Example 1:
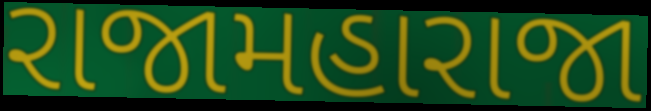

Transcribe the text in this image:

રાજામહારાજા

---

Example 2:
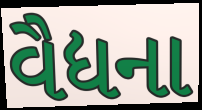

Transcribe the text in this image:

વૈદ્યના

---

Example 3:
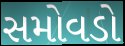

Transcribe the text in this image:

સમોવડો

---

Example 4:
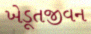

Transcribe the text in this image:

ખેડૂતજીવન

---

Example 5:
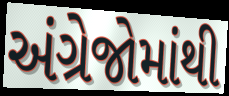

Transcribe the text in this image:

અંગ્રેજોમાંથી